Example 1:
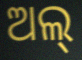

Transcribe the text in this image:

ଅଲ୍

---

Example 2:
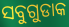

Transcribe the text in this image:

ସବୁଗୁଡାକ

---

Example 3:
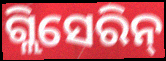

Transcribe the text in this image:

ଗ୍ଲିସେରିନ୍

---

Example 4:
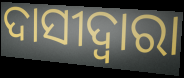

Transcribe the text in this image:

ଦାସୀଦ୍ୱାରା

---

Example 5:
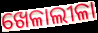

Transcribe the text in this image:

ଖେଳାଲୀଳା